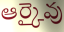
ఆర్కైవు